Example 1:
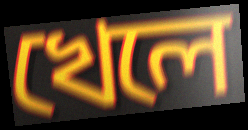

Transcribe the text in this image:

খেলে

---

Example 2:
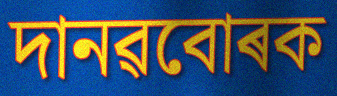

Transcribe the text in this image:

দানৱবোৰক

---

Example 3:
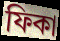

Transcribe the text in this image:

ফিকা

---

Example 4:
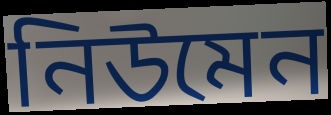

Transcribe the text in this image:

নিউমেন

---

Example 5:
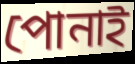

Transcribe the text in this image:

পোনাই